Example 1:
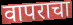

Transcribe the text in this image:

वापराचा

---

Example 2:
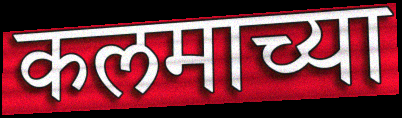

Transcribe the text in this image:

कलमाच्या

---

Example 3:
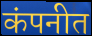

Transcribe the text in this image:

कंपनीत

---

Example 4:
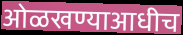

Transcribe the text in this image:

ओळखण्याआधीच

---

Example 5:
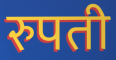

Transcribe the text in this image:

रुपती